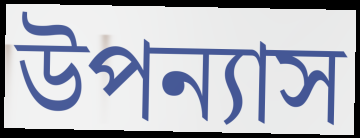
উপন্যাস